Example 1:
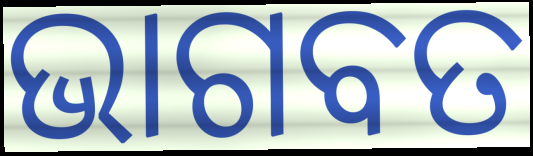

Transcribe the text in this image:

ଭାଗବତ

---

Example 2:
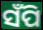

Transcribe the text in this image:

ସଁପି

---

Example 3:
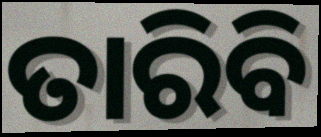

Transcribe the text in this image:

ତାରିବି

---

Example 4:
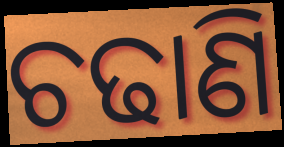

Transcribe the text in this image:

ଚଢାଣି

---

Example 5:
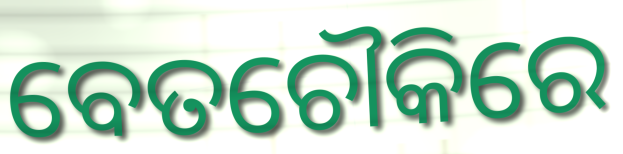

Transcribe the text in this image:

ବେତଚୌକିରେ